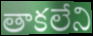
తాకలేని